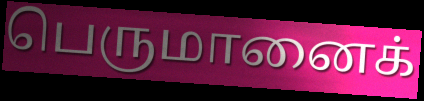
பெருமானைக்